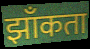
झाँकता